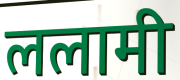
ललामी